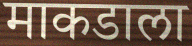
माकडाला